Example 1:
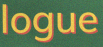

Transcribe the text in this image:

logue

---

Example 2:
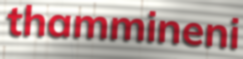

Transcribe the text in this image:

thammineni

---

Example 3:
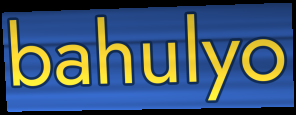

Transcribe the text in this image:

bahulyo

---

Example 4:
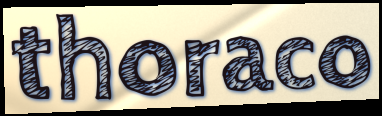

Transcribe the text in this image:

thoraco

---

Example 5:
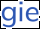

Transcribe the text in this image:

gie